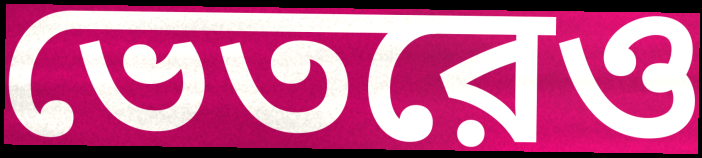
ভেতরেও